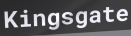
Kingsgate